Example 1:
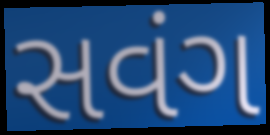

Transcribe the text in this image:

સવંગ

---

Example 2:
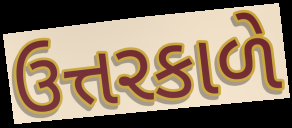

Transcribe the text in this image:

ઉત્તરકાળે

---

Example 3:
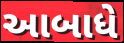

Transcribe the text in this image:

આબાધે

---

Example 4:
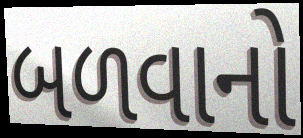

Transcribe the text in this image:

બળવાનો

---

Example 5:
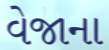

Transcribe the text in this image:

વેજાના